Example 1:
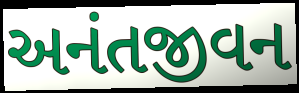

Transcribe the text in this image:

અનંતજીવન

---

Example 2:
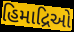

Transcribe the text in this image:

હિમાદ્રિઓ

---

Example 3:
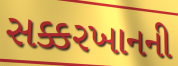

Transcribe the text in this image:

સક્કરખાનની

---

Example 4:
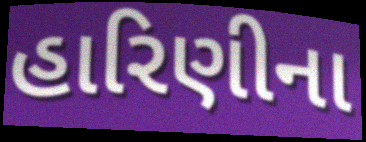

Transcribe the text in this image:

હારિણીના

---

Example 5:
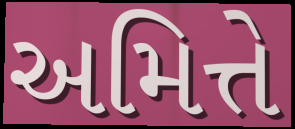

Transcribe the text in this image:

અમિત્તે